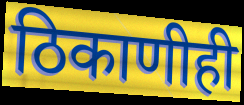
ठिकाणीही